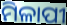
ମିଳାପୀ